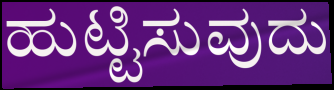
ಹುಟ್ಟಿಸುವುದು